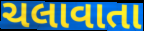
ચલાવાતા